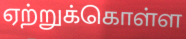
ஏற்றுக்கொள்ள